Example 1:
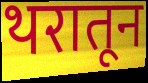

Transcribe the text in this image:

थरातून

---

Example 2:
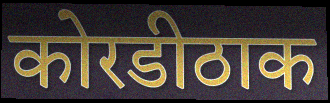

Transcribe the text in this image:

कोरडीठाक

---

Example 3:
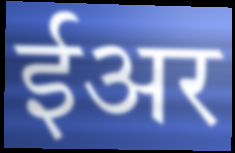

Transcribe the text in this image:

ईअर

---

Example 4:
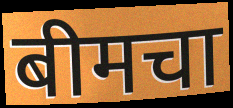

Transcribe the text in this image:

बीमचा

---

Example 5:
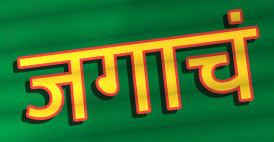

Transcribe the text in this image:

जगाचं